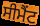
ਸੀਮੈੰਟ